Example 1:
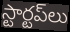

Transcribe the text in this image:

స్టార్టప్‌లు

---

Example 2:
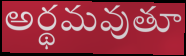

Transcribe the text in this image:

అర్థమవుతూ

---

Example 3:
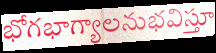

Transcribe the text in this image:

భోగభాగ్యాలనుభవిస్తూ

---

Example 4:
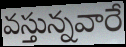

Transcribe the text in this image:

వస్తున్నవారే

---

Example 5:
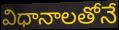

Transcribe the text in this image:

విధానాలతోనే